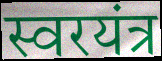
स्वरयंत्र